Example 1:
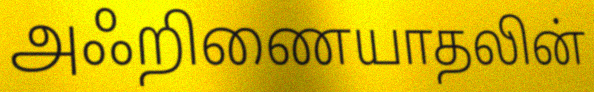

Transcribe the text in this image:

அஃறிணையாதலின்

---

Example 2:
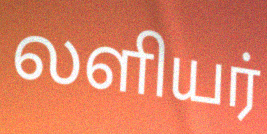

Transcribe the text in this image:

லளியர்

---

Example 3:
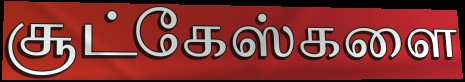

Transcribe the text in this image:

சூட்கேஸ்களை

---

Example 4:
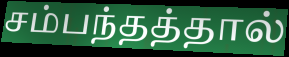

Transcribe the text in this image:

சம்பந்தத்தால்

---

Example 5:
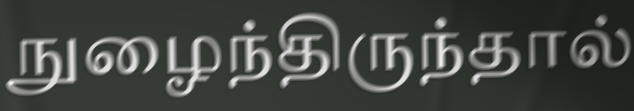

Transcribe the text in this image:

நுழைந்திருந்தால்